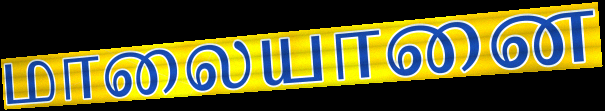
மாலையானை